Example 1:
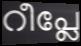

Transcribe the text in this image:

റീപ്ലേ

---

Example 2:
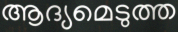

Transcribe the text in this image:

ആദ്യമെടുത്ത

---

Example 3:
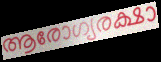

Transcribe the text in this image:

ആരോഗ്യരക്ഷാ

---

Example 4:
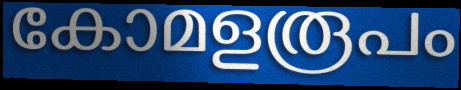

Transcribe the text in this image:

കോമളരൂപം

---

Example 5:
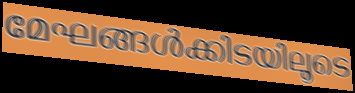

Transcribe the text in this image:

മേഘങ്ങൾക്കിടയിലൂടെ